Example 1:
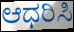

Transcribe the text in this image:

ಆಧರಿಸಿ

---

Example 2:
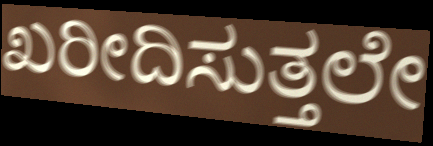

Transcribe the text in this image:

ಖರೀದಿಸುತ್ತಲೇ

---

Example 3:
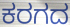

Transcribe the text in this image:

ಕರಗದ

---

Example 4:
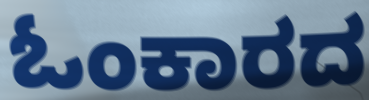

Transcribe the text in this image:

ಓಂಕಾರದ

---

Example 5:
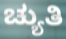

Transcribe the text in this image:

ಚ್ಯುತಿ